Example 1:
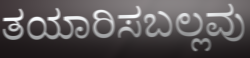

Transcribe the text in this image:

ತಯಾರಿಸಬಲ್ಲವು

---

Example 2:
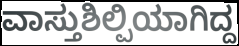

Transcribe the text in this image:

ವಾಸ್ತುಶಿಲ್ಪಿಯಾಗಿದ್ದ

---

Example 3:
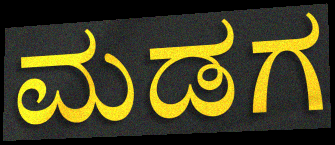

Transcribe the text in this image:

ಮಡಗ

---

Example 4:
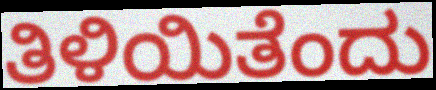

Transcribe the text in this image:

ತಿಳಿಯಿತೆಂದು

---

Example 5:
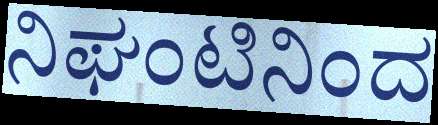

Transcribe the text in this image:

ನಿಘಂಟಿನಿಂದ